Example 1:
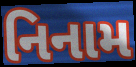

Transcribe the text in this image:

નિનામ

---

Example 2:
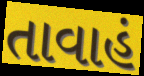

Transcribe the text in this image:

તાવાહં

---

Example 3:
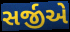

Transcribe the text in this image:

સર્જીએ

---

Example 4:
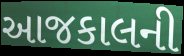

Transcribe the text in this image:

આજકાલની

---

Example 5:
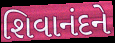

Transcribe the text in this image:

શિવાનંદને